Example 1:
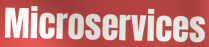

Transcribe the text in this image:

Microservices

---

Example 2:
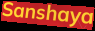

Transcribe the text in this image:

Sanshaya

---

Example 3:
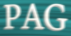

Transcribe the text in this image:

PAG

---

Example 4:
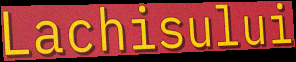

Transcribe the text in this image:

Lachisului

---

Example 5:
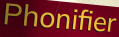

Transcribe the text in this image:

Phonifier